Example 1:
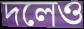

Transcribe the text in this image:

দলেও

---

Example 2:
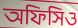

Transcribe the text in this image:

অফিসিও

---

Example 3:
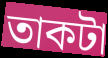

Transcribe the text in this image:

তাকটা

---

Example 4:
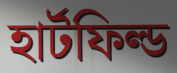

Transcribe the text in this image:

হার্টফিল্ড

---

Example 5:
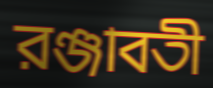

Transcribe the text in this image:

রঞ্জাবতী